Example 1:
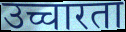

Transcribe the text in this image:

उच्चारता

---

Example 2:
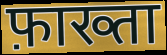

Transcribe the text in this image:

फ़ाख्ता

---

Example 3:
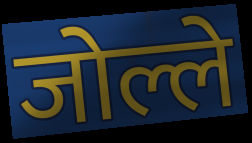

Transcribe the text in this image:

जोल्ले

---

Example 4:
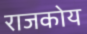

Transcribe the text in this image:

राजकोय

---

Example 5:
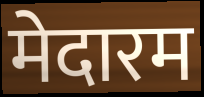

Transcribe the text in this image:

मेदारम